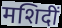
मशिदीं